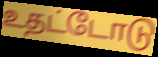
உதட்டோடு